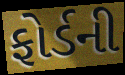
ફોર્ડની